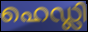
ഹെഡ്ലി